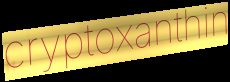
cryptoxanthin